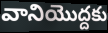
వానియొద్దకు